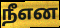
நீஎன